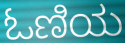
ಓಣಿಯ